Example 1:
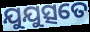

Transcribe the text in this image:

ଯୁଯୁତ୍ସତେ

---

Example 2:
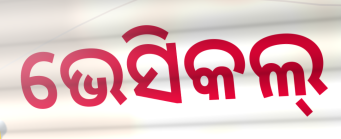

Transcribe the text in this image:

ଭେସିକଲ୍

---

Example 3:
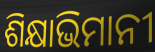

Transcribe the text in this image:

ଶିକ୍ଷାଭିମାନୀ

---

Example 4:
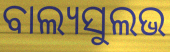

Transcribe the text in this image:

ବାଲ୍ୟସୁଲଭ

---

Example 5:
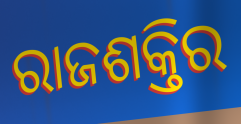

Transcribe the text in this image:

ରାଜଶକ୍ତିର